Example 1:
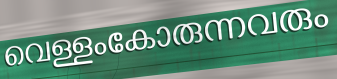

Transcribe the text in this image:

വെള്ളംകോരുന്നവരും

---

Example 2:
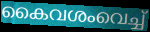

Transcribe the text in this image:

കൈവശംവെച്ച്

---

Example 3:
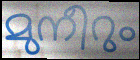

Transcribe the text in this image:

മുനീറും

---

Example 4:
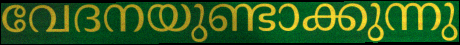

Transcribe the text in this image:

വേദനയുണ്ടാക്കുന്നു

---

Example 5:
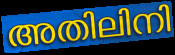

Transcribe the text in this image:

അതിലിനി